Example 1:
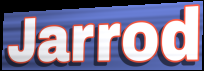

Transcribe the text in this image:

Jarrod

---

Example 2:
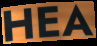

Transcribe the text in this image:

HEA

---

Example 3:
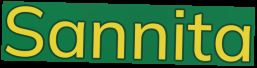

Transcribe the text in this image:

Sannita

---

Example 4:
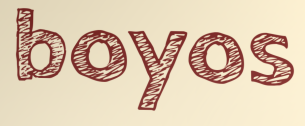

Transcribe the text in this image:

boyos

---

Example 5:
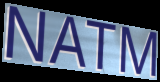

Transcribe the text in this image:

NATM